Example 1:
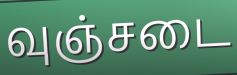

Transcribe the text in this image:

வுஞ்சடை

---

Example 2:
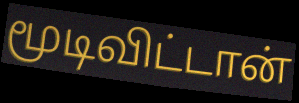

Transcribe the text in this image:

மூடிவிட்டான்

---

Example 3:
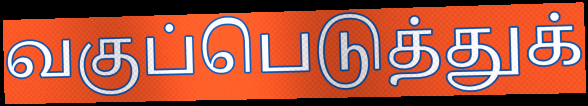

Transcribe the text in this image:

வகுப்பெடுத்துக்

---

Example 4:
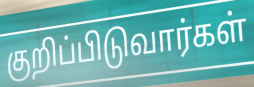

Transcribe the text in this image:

குறிப்பிடுவார்கள்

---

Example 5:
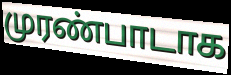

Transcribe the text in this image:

முரண்பாடாக